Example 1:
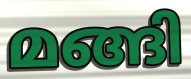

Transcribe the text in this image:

മങ്ങി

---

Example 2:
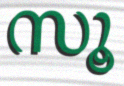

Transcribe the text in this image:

സൂ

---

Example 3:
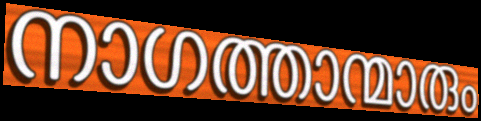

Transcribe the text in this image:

നാഗത്താന്മാരും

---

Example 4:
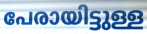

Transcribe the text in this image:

പേരായിട്ടുള്ള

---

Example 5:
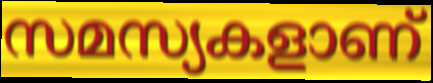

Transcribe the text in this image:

സമസ്യകളാണ്